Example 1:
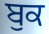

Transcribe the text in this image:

ਬੁਕ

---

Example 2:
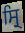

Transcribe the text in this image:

ਸ੍ਰਿ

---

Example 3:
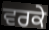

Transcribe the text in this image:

ਵਰਕੇ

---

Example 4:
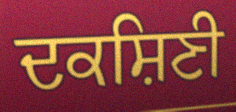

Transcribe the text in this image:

ਦਕਸ਼ਿਣੀ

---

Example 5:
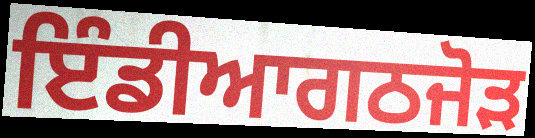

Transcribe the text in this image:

ਇੰਡੀਆਗਠਜੋੜ